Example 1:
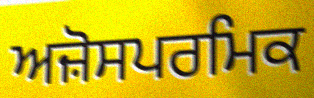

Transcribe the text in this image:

ਅਜ਼ੋਸਪਰਮਿਕ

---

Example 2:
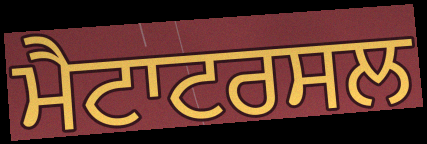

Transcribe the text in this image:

ਮੈਟਾਟਰਸਲ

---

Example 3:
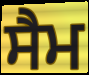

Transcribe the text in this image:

ਸੈਮ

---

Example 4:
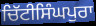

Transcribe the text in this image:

ਚਿੱਟੀਸਿੰਘਪੁਰਾ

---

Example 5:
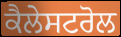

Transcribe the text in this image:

ਕੈਲੇਸਟਰੋਲ